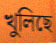
খুলিছে